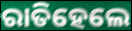
ରାତିହେଲେ